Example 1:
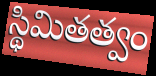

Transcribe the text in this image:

స్థిమితత్వం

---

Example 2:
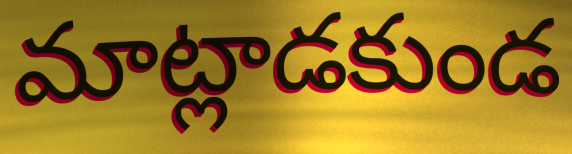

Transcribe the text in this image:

మాట్లాడకుండ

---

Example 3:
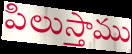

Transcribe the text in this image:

పిలుస్తాము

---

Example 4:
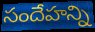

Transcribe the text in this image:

సందేహన్ని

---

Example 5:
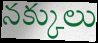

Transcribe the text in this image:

నక్కులు